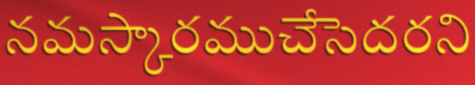
నమస్కారముచేసెదరని